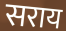
सराय